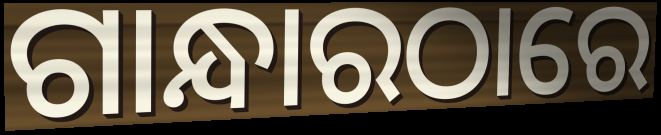
ଗାନ୍ଧାରଠାରେ